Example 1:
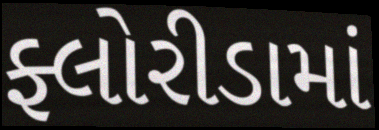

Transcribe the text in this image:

ફ્લોરીડામાં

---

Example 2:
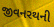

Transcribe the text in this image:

જીવનરથની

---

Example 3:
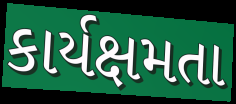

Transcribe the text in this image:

કાર્યક્ષમતા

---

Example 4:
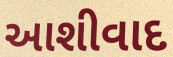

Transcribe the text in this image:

આશીવાદ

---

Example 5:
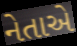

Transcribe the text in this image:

નેતાએ